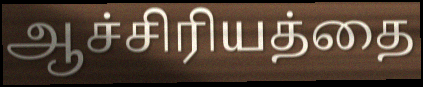
ஆச்சிரியத்தை